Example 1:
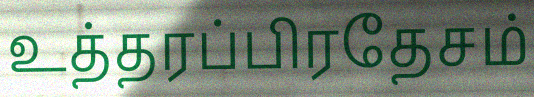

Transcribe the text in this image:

உத்தரப்பிரதேசம்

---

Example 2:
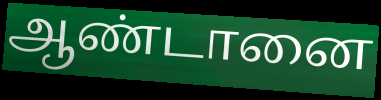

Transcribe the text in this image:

ஆண்டானை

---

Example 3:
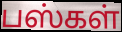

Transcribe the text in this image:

பஸ்கள்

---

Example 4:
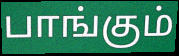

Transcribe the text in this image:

பாங்கும்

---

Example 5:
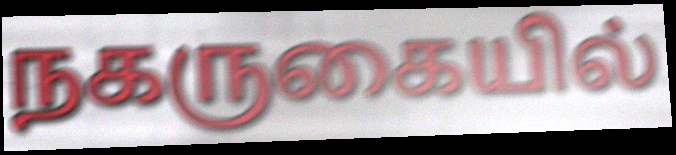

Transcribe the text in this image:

நகருகையில்